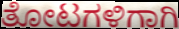
ತೋಟಗಳಿಗಾಗಿ